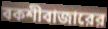
বকশীবাজারের